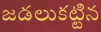
జడలుకట్టిన